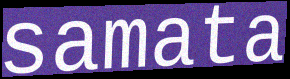
samata